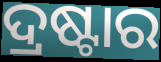
ଦ୍ରଷ୍ଟାର